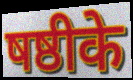
षष्ठीके